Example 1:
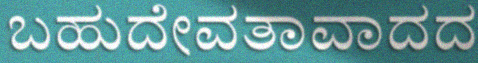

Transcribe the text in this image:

ಬಹುದೇವತಾವಾದದ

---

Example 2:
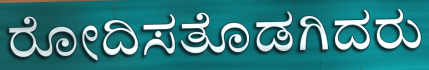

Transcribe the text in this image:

ರೋದಿಸತೊಡಗಿದರು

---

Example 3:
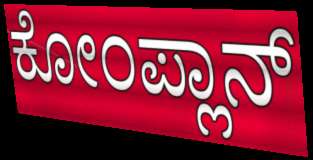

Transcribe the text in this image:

ಕೋಂಪ್ಲಾನ್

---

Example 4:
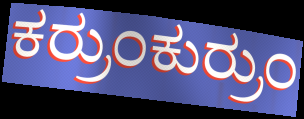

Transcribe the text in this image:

ಕರ್ರುಂಕುರ್ರುಂ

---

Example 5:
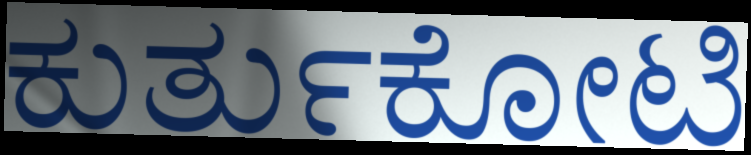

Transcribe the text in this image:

ಕುರ್ತುಕೋಟಿ